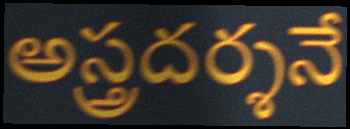
అస్త్రదర్శనే